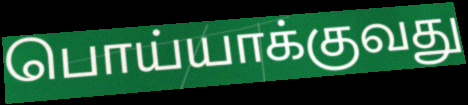
பொய்யாக்குவது